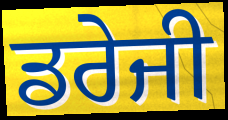
ਡਰੇਜੀ